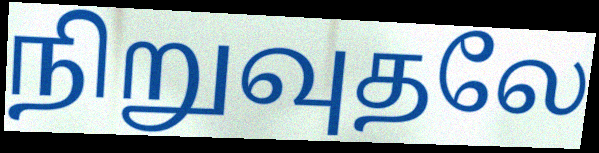
நிறுவுதலே